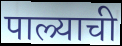
पाल्याची